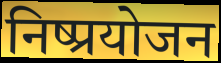
निष्प्रयोजन